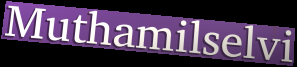
Muthamilselvi